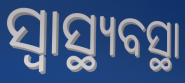
ସ୍ଵାସ୍ଥ୍ୟବସ୍ଥା